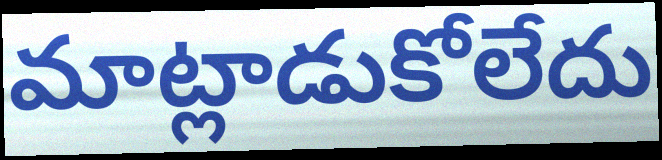
మాట్లాడుకోలేదు